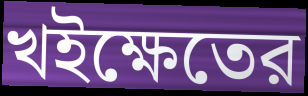
খইক্ষেতের